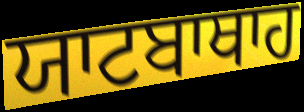
ਯਾਟਬਾਥਾਹ